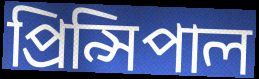
প্রিন্সিপাল